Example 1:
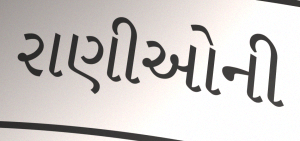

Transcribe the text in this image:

રાણીઓની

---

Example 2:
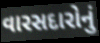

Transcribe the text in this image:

વારસદારોનું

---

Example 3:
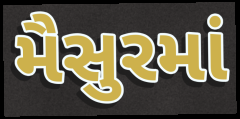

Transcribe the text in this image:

મૈસુરમાં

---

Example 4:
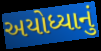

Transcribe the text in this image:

અયોધ્યાનું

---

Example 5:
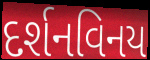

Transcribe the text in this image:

દર્શનવિનય